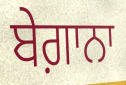
ਬੇਗ਼ਾਨਾ